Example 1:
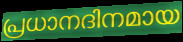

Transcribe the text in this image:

പ്രധാനദിനമായ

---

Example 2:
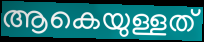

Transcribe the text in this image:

ആകെയുള്ളത്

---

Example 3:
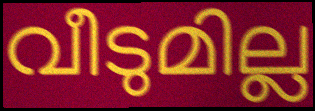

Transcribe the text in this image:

വീടുമില്ല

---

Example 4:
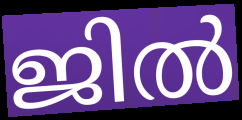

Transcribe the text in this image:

ജിൽ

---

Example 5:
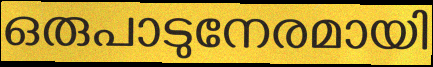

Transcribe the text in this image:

ഒരുപാടുനേരമായി